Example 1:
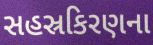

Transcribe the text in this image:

સહસ્રકિરણના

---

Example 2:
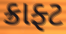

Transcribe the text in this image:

ક્રાફ્ટ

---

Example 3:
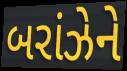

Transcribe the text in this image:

બરાંઝેને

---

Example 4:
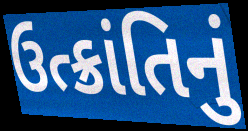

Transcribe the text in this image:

ઉત્ક્રાંતિનું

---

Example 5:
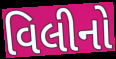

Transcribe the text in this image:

વિલીનો